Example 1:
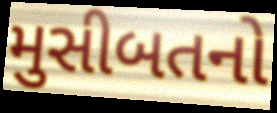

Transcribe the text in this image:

મુસીબતનો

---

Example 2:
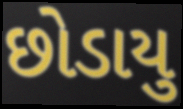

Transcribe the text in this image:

છોડાયુ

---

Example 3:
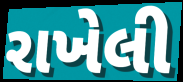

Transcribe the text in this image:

રાખેલી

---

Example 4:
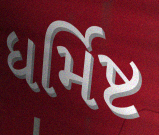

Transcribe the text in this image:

ધર્મિષ્ટ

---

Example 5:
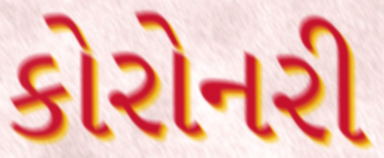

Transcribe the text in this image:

કોરોનરી